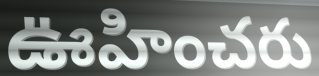
ఊహించరు